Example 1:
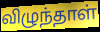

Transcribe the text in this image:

விழுந்தாள்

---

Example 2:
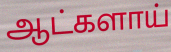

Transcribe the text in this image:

ஆட்களாய்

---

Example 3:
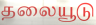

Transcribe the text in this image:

தலையூடு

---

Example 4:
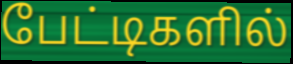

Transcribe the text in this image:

பேட்டிகளில்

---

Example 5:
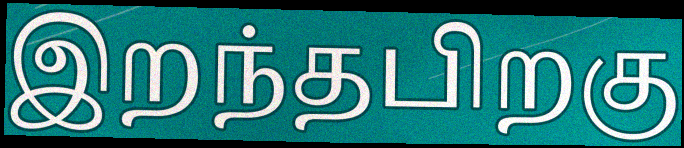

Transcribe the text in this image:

இறந்தபிறகு